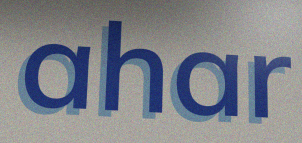
ahar